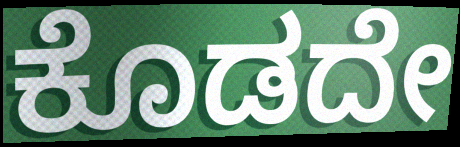
ಕೊಡದೇ